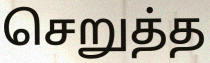
செறுத்த